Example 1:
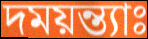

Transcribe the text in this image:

দময়ন্ত্যাঃ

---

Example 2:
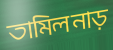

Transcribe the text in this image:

তামিলনাড়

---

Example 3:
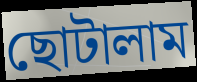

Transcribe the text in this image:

ছোটালাম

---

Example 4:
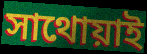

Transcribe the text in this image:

সাথোয়াই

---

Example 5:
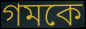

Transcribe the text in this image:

গমকে